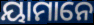
ୟାମାନେ